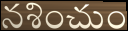
నశించుం